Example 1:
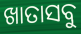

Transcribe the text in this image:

ଖାତାସବୁ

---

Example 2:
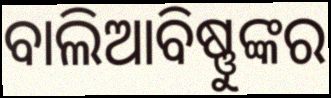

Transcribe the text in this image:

ବାଲିଆବିଷ୍ଣୁଙ୍କର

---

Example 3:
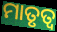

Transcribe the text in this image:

ମାତୃତ୍ୱ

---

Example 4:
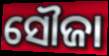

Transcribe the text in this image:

ସୌଜା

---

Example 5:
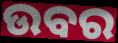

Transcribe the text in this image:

ଉବର